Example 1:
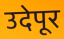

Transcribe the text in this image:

उदेपूर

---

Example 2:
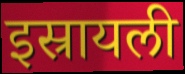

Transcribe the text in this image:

इस्रायली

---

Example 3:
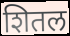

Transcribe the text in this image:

शितल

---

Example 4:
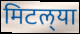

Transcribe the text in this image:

मिटल्या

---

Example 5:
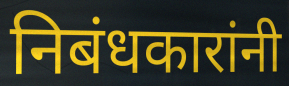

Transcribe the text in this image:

निबंधकारांनी